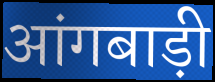
आंगबाड़ी